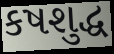
કષશુદ્ધ